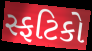
સ્ફટિકો